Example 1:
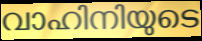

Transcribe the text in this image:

വാഹിനിയുടെ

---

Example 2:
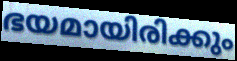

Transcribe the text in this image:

ഭയമായിരിക്കും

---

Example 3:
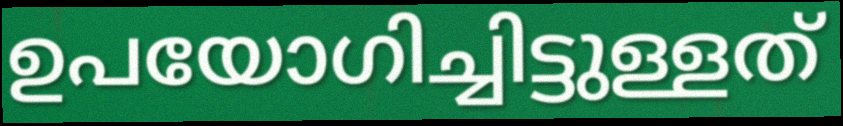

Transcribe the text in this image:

ഉപയോഗിച്ചിട്ടുള്ളത്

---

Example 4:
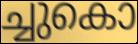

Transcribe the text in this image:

ച്ചുകൊ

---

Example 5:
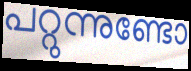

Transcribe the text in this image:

പറ്റുന്നുണ്ടോ